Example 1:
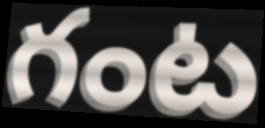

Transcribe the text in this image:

గంట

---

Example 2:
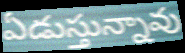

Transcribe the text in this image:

ఏడుస్తున్నావు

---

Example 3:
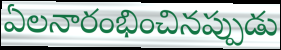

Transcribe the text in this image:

ఏలనారంభించినప్పుడు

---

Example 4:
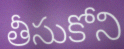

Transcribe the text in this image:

తీసుకోని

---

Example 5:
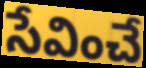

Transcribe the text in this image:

సేవించే